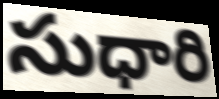
సుధారి